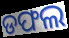
ଡଫଲ